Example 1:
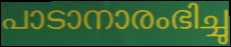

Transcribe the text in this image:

പാടാനാരംഭിച്ചു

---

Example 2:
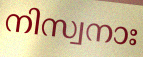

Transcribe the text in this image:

നിസ്വനാഃ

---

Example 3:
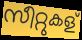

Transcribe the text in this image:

സീറ്റുകള്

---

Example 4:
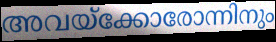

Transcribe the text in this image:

അവയ്ക്കോരോന്നിനും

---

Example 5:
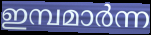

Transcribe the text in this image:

ഇമ്പമാർന്ന